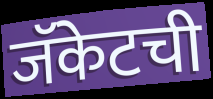
जॅकेटची